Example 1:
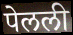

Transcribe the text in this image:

पेलली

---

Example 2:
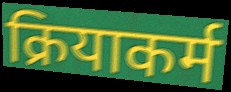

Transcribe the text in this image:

क्रियाकर्म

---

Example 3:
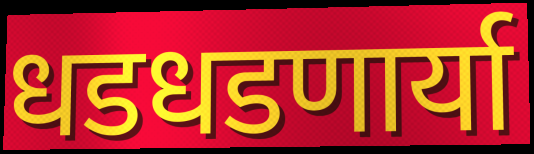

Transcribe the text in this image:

धडधडणार्या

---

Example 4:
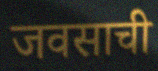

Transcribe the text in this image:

जवसाची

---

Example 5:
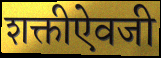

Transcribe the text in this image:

शक्तीऐवजी